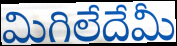
మిగిలేదేమీ